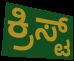
ಕ್ರಿಸ್ಟ್